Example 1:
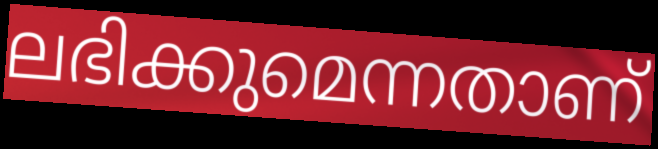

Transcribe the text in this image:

ലഭിക്കുമെന്നതാണ്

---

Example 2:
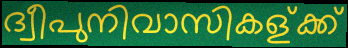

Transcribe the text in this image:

ദ്വീപുനിവാസികള്ക്ക്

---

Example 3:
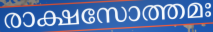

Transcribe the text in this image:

രാക്ഷസോത്തമഃ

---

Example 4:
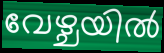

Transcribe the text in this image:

വേഴ്ചയിൽ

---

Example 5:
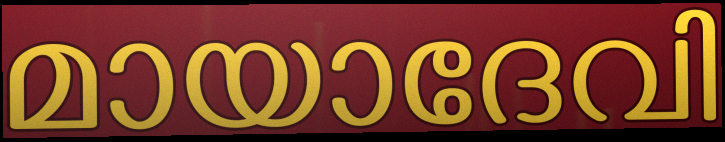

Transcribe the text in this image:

മായാദേവി